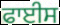
ਫਾਈਸ